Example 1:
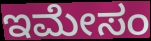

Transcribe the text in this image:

ಇಮೇಸಂ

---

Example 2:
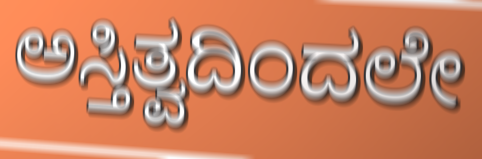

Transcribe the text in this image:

ಅಸ್ತಿತ್ವದಿಂದಲೇ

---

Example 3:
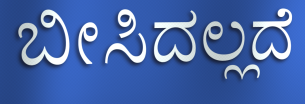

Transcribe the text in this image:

ಬೀಸಿದಲ್ಲದೆ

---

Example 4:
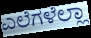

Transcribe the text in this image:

ಎಲೆಗಳೆಲ್ಲಾ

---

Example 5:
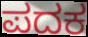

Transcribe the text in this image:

ಪದಕ